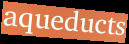
aqueducts